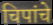
चिपांचे